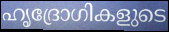
ഹൃദ്രോഗികളുടെ